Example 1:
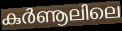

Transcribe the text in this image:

കുർണൂലിലെ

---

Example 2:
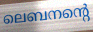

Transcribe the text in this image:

ലെബനന്റെ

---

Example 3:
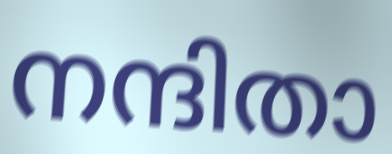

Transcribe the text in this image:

നന്ദിതാ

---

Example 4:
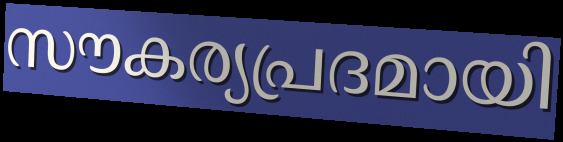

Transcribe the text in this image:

സൗകര്യപ്രദമായി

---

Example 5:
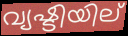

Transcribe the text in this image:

വ്യഷ്ടിയില്